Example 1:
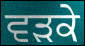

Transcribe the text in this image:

ਵੜਕੇ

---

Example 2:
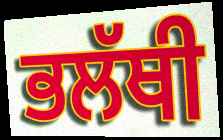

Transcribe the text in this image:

ਭਲੱਥੀ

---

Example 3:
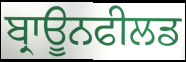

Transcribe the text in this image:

ਬ੍ਰਾਊਨਫੀਲਡ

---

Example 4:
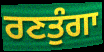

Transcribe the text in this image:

ਰਣਤੁੰਗਾ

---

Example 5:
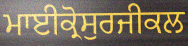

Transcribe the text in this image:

ਮਾਈਕ੍ਰੋਸੁਰਜੀਕਲ